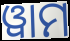
ୱାମ